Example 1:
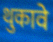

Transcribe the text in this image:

थुकावे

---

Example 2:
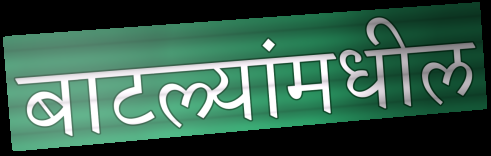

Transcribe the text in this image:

बाटल्यांमधील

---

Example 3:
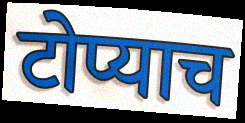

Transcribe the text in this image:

टोप्याच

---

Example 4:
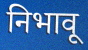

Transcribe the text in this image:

निभावू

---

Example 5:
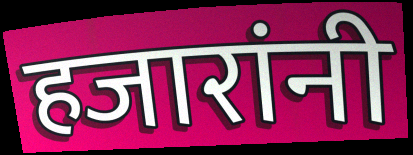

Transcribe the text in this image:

हजारांनी